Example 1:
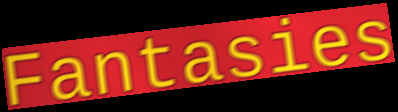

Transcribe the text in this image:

Fantasies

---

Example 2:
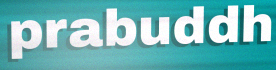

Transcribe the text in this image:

prabuddh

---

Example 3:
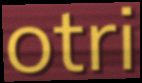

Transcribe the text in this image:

otri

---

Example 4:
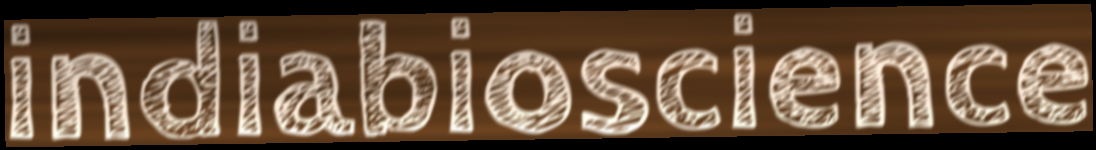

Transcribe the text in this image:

indiabioscience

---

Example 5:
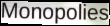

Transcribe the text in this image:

Monopolies